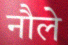
नौले